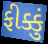
ફીક્કું